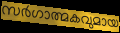
സർഗാത്മകവുമായ